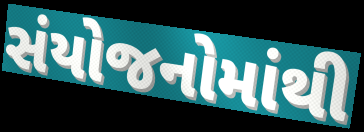
સંયોજનોમાંથી